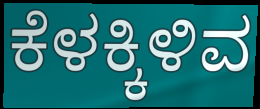
ಕೆಳಕ್ಕಿಳಿವ